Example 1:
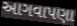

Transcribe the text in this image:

આગવાપણા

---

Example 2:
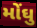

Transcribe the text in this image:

મોંઘુ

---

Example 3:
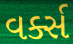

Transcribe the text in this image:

વર્ક્સ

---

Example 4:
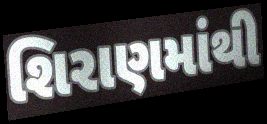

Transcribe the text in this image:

શિરાણમાંથી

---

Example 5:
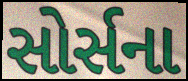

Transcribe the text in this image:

સોર્સના